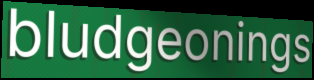
bludgeonings